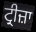
ਟ੍ਰੀਜ਼ਾ